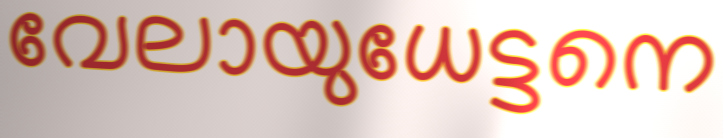
വേലായുധേട്ടനെ